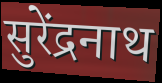
सुरेंद्रनाथ